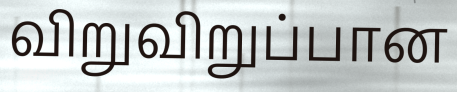
விறுவிறுப்பான